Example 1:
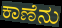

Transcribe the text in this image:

ಕಾಣೆನು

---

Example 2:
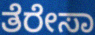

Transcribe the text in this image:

ತೆರೇಸಾ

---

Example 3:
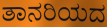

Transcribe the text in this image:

ತಾನರಿಯದ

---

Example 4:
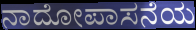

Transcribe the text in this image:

ನಾದೋಪಾಸನೆಯ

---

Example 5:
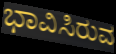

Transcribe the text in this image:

ಭಾವಿಸಿರುವ